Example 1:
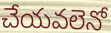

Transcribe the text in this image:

చేయవలెనో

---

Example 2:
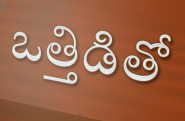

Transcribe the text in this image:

ఒత్తిడితో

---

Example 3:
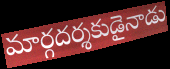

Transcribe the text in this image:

మార్గదర్శకుడైనాడు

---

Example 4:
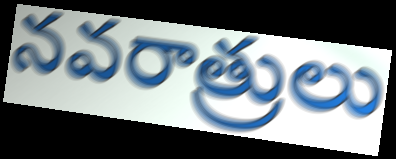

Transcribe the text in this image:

నవరాత్రులు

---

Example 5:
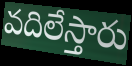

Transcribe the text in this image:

వదిలేస్తారు